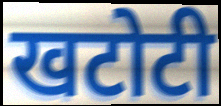
खटोटी